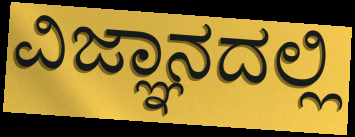
ವಿಜ್ಞಾನದಲ್ಲಿ